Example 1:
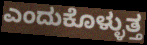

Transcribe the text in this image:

ಎಂದುಕೊಳ್ಳುತ್ತ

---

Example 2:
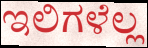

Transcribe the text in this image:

ಇಲಿಗಳೆಲ್ಲ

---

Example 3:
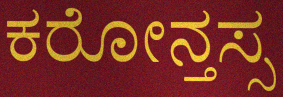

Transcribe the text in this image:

ಕರೋನ್ತಸ್ಸ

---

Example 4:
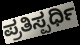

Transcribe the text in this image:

ಪ್ರತಿಸ್ಪರ್ಧಿ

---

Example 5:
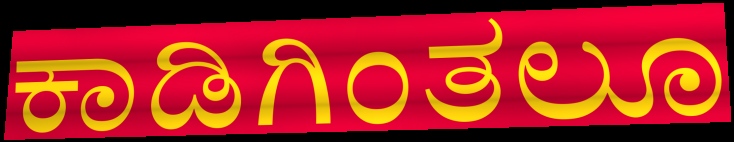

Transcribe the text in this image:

ಕಾಡಿಗಿಂತಲೂ